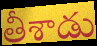
తీశాడు